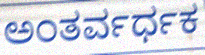
ಅಂತರ್ವರ್ಧಕ